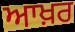
ਆਖ਼ਰ